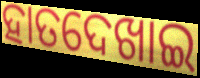
ହାତଦେଖାଇ